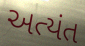
અત્યંત